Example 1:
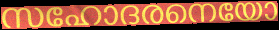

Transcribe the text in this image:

സഹോദരനെയോ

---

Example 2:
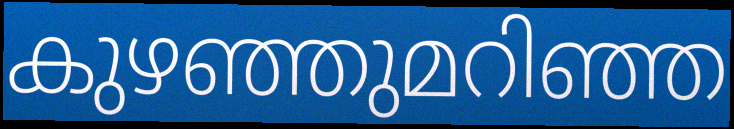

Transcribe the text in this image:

കുഴഞ്ഞുമറിഞ്ഞ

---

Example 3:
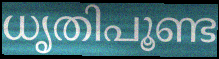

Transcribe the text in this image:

ധൃതിപൂണ്ട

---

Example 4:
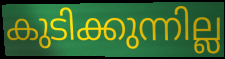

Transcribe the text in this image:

കുടിക്കുന്നില്ല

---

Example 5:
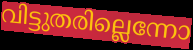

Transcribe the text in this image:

വിട്ടുതരില്ലെന്നോ